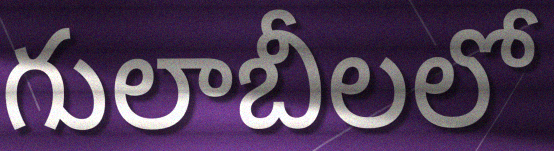
గులాబీలలో